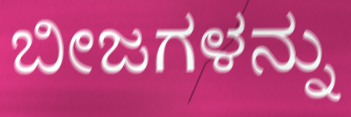
ಬೀಜಗಳನ್ನು